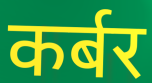
कर्बर